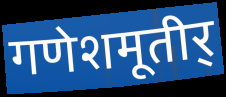
गणेशमूतीर्